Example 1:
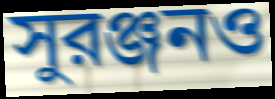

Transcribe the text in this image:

সুরঞ্জনও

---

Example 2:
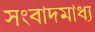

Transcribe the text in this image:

সংবাদমাধ্য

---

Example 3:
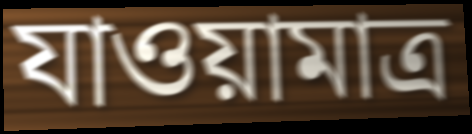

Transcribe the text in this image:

যাওয়ামাত্র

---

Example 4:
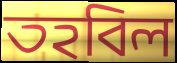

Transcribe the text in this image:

তহবিল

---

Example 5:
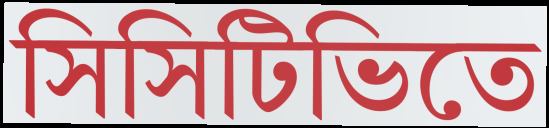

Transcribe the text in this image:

সিসিটিভিতে